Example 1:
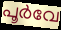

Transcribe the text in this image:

പൂർവേ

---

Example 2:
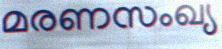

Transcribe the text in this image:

മരണസംഖ്യ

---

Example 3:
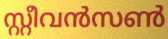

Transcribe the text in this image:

സ്റ്റീവൻസൺ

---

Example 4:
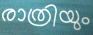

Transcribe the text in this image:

രാത്രിയും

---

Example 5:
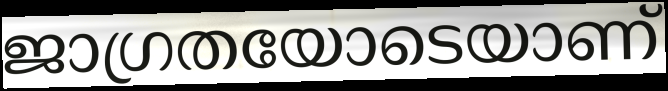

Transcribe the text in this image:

ജാഗ്രതയോടെയാണ്